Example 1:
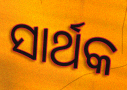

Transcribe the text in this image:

ସାର୍ଥକ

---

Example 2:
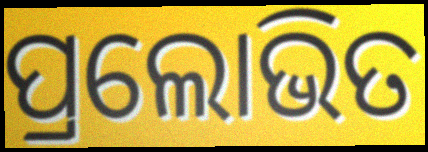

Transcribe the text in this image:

ପ୍ରଲୋଭିତ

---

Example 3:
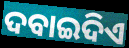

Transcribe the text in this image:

ଦବାଇଦିଏ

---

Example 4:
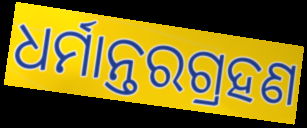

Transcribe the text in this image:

ଧର୍ମାନ୍ତରଗ୍ରହଣ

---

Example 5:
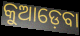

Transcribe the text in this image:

କୁଆଡ଼େବା